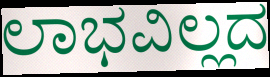
ಲಾಭವಿಲ್ಲದ